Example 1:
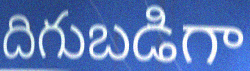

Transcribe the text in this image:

దిగుబడిగా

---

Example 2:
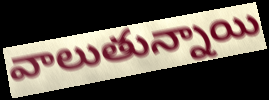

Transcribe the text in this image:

వాలుతున్నాయి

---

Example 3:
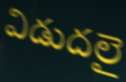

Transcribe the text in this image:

విడుదలై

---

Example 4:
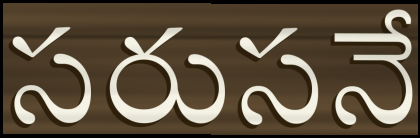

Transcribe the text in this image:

సరుసనే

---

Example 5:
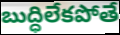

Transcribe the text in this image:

బుద్ధిలేకపోతే